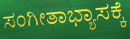
ಸಂಗೀತಾಭ್ಯಾಸಕ್ಕೆ